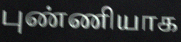
புண்ணியாக